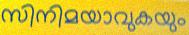
സിനിമയാവുകയും